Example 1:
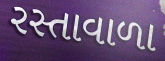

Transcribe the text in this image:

રસ્તાવાળા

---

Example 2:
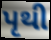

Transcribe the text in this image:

પૃથી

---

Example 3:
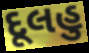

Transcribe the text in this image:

દૂલહુ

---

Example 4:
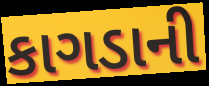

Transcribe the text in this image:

કાગડાની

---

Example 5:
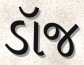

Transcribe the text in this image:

ડૉજ